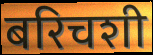
बरिचशी